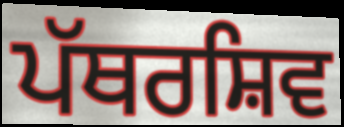
ਪੱਥਰਸ਼ਿਵ